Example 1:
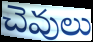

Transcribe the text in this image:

చెవులు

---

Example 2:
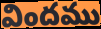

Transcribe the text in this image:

విందము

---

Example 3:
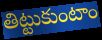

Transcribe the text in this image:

తిట్టుకుంటాం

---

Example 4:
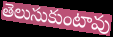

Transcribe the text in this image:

తెలుసుకుంటావు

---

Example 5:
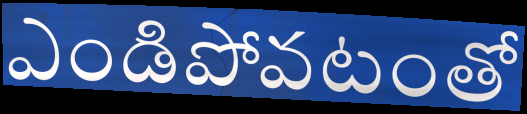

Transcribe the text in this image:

ఎండిపోవటంతో